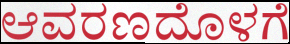
ಆವರಣದೊಳಗೆ